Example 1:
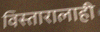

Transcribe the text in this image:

विस्तारालाही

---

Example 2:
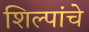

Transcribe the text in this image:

शिल्पांचे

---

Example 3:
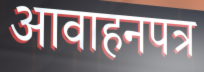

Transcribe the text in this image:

आवाहनपत्र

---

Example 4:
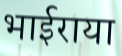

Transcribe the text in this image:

भाईराया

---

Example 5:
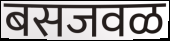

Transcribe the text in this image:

बसजवळ